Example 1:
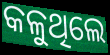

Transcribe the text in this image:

କଳୁଥିଲେ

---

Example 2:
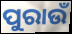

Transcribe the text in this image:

ପୁରାଉଁ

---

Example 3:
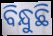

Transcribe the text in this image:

ବିନ୍ଧୁଛି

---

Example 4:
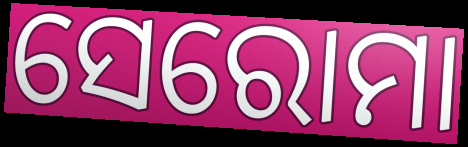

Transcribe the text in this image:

ସେରୋମା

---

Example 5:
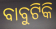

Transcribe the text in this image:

ବାବୁଟିକି